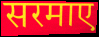
सरमाए